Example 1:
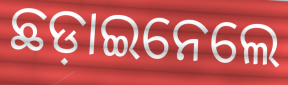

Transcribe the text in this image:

ଛଡ଼ାଇନେଲେ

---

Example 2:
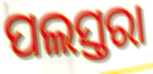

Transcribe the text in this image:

ପଲସ୍ତରା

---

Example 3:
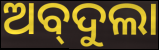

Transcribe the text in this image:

ଅବ୍‌ଦୁଲା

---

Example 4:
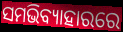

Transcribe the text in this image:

ସମଭିବ୍ୟାହାରରେ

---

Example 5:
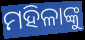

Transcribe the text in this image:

ମହିଳାଙ୍କୁ